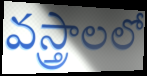
వస్త్రాలలో